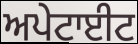
ਅਪੇਟਾਈਟ